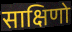
साक्षिणो